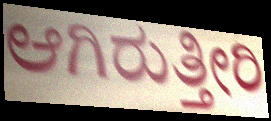
ಆಗಿರುತ್ತೀರಿ